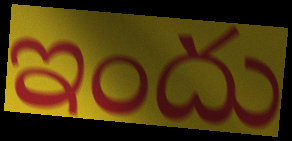
ఇందు